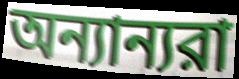
অন্যান্যরা